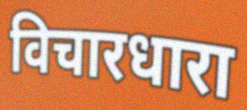
विचारधारा